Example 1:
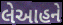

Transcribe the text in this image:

લેઆહને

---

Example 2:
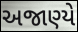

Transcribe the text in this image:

અજાણ્યે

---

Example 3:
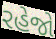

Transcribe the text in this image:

રહેજો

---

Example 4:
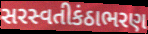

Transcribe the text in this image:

સરસ્વતીકંઠાભરણ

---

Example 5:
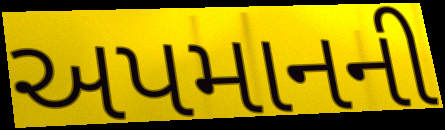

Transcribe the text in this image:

અપમાનની